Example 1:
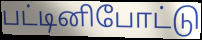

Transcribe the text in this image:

பட்டினிபோட்டு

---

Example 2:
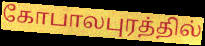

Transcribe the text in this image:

கோபாலபுரத்தில்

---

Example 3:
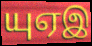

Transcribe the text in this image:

யுஏஇ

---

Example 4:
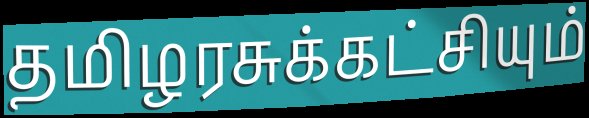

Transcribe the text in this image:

தமிழரசுக்கட்சியும்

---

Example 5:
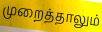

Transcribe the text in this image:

முறைத்தாலும்